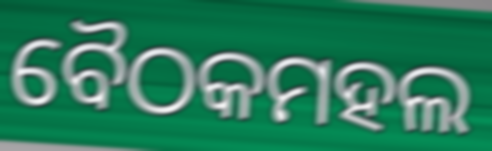
ବୈଠକମହଲ